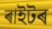
ৰাইটৰ